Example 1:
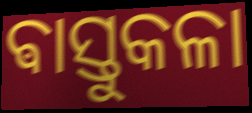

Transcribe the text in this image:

ଵାସ୍ତୁକଳା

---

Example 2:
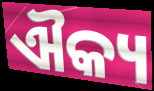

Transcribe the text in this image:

ଐକ୍ୟ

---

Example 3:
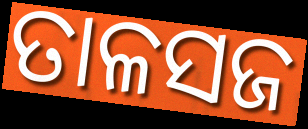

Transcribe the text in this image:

ତାଳସଜ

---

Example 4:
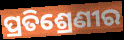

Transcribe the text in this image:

ପ୍ରତିଶ୍ରେଣୀର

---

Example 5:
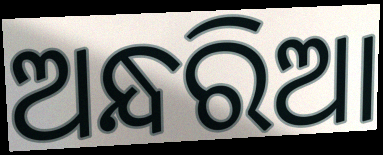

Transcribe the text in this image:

ଅନ୍ଧରିଆ